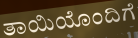
ತಾಯಿಯೊಂದಿಗೆ